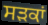
ਸੜਕਾਂ